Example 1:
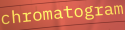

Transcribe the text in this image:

chromatogram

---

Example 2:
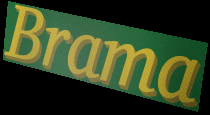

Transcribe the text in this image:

Brama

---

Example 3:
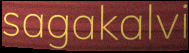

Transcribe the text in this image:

sagakalvi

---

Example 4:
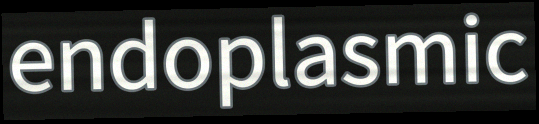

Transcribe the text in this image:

endoplasmic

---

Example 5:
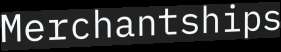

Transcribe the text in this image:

Merchantships